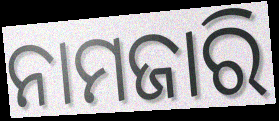
ନାମଜାରି